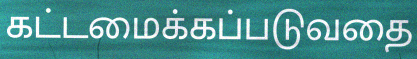
கட்டமைக்கப்படுவதை